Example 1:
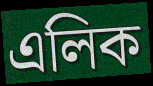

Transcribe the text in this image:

এলিক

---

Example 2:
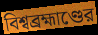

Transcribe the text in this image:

বিশ্বব্রহ্মাণ্ডের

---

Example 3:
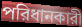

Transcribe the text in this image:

পরিধানকারী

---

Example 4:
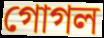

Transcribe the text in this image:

গোগল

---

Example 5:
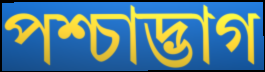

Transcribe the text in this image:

পশ্চাদ্ভাগ